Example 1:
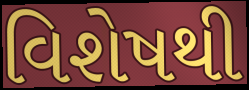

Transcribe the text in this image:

વિશેષથી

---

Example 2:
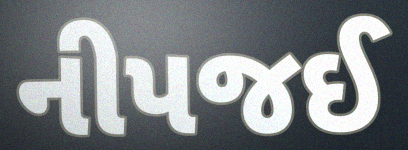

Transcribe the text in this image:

નીપજઈ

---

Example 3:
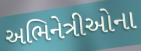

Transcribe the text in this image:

અભિનેત્રીઓના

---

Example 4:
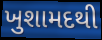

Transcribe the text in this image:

ખુશામદથી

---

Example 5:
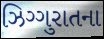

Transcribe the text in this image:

ઝિગ્ગુરાતના